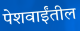
पेशवाईंतील